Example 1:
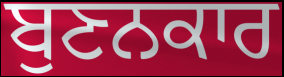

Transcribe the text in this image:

ਬੁਣਨਕਾਰ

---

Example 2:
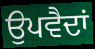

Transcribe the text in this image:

ਉਪਵੈਦਾਂ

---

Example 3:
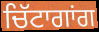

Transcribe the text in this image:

ਚਿੱਟਾਗਾਂਗ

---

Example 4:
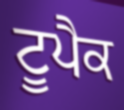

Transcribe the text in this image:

ਟੂਪੈਕ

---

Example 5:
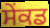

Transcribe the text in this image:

ਸੇਂਕਡ